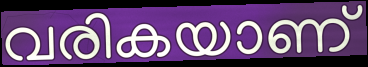
വരികയാണ്